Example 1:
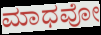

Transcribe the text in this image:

ಮಾಧವೋ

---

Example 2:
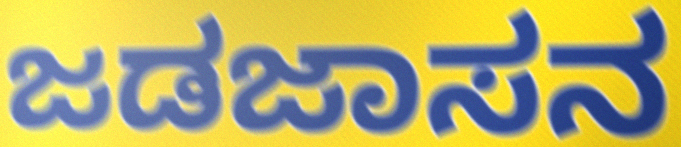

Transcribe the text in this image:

ಜಡಜಾಸನ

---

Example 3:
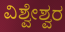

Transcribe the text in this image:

ವಿಶ್ವೇಶ್ವರ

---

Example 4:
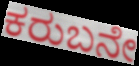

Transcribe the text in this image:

ಕರುಬನೇ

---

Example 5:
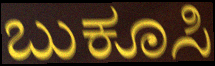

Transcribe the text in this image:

ಬುಕೂಸಿ